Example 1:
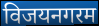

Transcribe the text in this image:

विजयनगरम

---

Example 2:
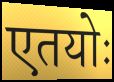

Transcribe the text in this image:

एतयोः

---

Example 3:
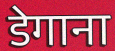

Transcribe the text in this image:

डेगाना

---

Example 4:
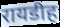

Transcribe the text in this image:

रायडीह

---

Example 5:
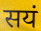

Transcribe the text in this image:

सयं